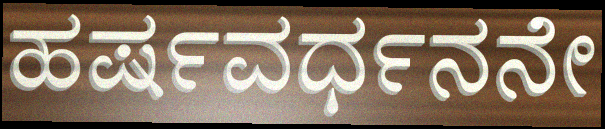
ಹರ್ಷವರ್ಧನನೇ